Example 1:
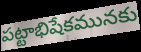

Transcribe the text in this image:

పట్టాభిషేకమునకు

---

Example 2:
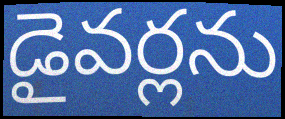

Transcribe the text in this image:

డైవర్లను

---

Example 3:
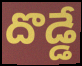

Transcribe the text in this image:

దొడ్డే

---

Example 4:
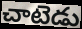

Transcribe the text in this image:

చాటెడు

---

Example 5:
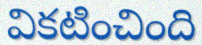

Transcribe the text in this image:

వికటించింది